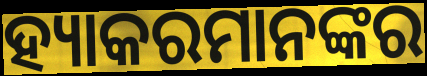
ହ୍ୟାକରମାନଙ୍କର